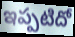
ఇప్పటిదో